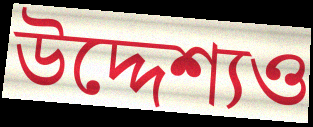
উদ্দেশ্যও